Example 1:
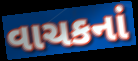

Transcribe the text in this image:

વાચકનાં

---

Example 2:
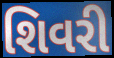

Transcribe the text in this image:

શિવરી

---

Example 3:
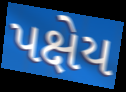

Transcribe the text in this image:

પક્ષેય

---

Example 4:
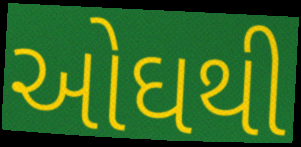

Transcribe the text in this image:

ઓઘથી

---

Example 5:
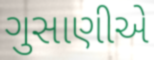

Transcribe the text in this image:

ગુસાણીએ